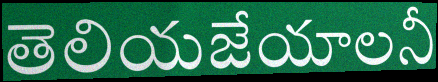
తెలియజేయాలనీ